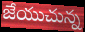
జేయుచున్న